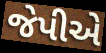
જેપીએ